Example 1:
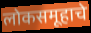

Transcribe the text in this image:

लोकसमूहाचे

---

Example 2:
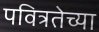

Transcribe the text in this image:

पवित्रतेच्या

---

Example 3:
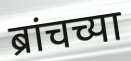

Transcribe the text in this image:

ब्रांचच्या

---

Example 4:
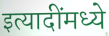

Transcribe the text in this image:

इत्यादींमध्ये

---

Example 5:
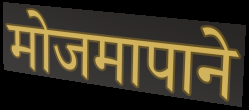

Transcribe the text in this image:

मोजमापाने